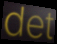
det